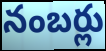
నంబర్లు